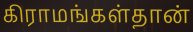
கிராமங்கள்தான்